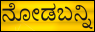
ನೋಡಬನ್ನಿ